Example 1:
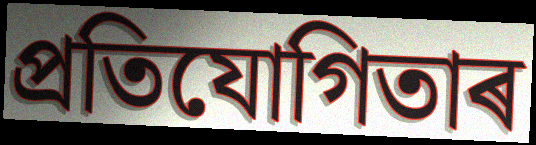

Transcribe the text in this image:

প্ৰতিযোগিতাৰ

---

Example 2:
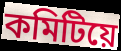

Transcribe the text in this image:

কমিটিয়ে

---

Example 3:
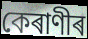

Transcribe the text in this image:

কেৰাণীৰ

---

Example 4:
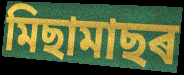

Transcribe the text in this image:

মিছামাছৰ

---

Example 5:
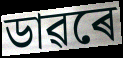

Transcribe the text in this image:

ডাৱৰে